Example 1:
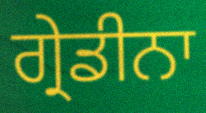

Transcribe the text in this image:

ਗ੍ਰੇਡੀਨਾ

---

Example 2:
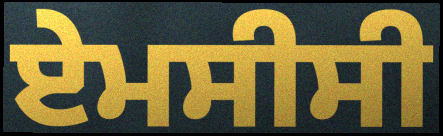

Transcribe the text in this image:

ਏਮਸੀਸੀ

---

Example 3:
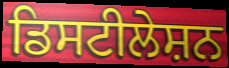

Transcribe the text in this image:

ਡਿਸਟੀਲੇਸ਼ਨ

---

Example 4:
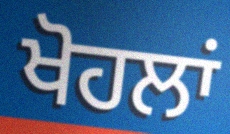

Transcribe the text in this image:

ਖੋਹਲਾਂ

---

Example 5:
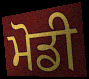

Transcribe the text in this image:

ਮੋਡੀ